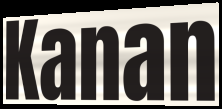
Kanan